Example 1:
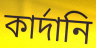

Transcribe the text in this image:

কার্দানি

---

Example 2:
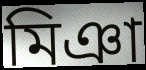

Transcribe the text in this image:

মিঞা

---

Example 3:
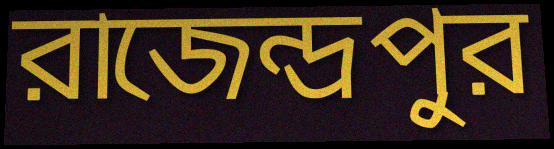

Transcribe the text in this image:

রাজেন্দ্রপুর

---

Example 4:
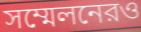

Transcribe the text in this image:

সম্মেলনেরও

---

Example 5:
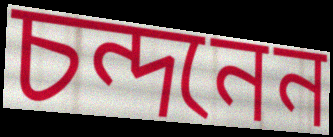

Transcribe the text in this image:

চন্দনেন